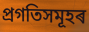
প্ৰগতিসমূহৰ